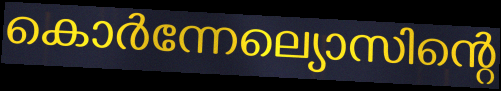
കൊർന്നേല്യൊസിന്റെ